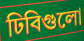
ঢিবিগুলো